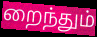
றைந்தும்